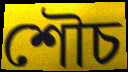
শৌচ